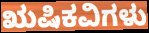
ಋಷಿಕವಿಗಳು